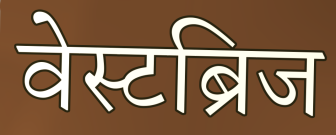
वेस्टब्रिज